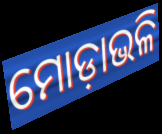
ମୋଡ଼ାଭଳି